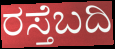
ರಸ್ತೆಬದಿ